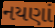
નયણાં